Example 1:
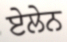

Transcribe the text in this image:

ਏਲੇਨ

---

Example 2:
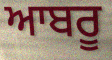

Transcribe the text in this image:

ਆਬਰੂ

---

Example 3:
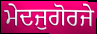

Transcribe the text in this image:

ਮੇਦਜੁਗੋਰਜੇ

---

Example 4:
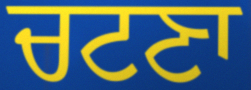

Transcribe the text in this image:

ਚਟਣਾ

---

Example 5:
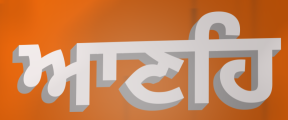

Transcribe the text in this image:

ਆਣਹਿ